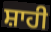
ਸ਼ਾਹੀ